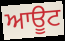
ਆਊਟ